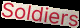
Soldiers